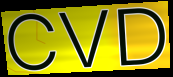
CVD